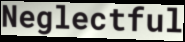
Neglectful